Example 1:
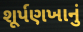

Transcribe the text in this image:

શૂર્પણખાનું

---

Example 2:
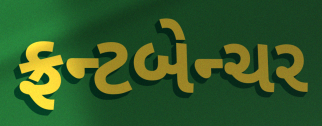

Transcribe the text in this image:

ફ્રન્ટબેન્ચર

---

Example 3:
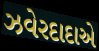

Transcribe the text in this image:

ઝવેરદાદાએ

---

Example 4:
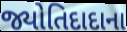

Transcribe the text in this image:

જ્યોતિદાદાના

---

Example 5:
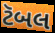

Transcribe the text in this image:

ટૅબલ